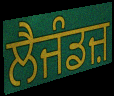
ਲੈਜੰਡਜ਼